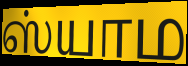
ஸ்யாம